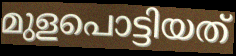
മുളപൊട്ടിയത്